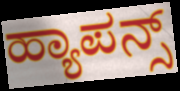
ಹ್ಯಾಪನ್ಸ್